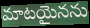
మాటయైనను